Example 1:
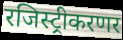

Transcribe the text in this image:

रजिस्ट्रीकरणर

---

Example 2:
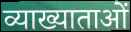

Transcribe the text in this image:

व्याख्याताओं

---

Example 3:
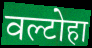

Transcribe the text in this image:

वल्टोहा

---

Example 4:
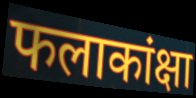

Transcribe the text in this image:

फलाकांक्षा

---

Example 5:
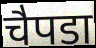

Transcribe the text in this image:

चैपडा